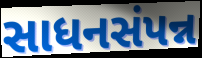
સાધનસંપન્ન